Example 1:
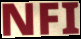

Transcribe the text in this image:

NFI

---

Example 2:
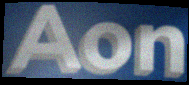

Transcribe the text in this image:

Aon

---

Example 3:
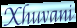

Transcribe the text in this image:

Xhuvani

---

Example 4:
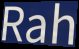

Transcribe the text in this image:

Rah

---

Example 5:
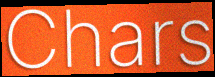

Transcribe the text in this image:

Chars